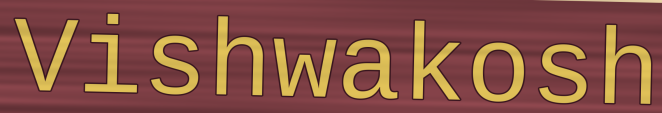
Vishwakosh